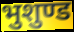
भुशुण्ड